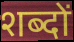
शब्दों